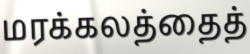
மரக்கலத்தைத்